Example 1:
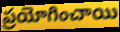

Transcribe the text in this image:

ప్రయోగించాయి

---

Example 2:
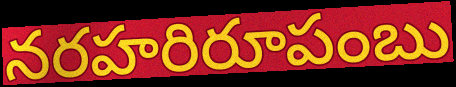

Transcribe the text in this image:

నరహరిరూపంబు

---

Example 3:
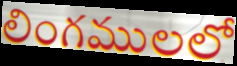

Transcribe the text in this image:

లింగములలో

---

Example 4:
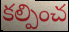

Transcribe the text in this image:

కల్పించ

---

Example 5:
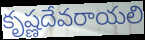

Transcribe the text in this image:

కృష్ణదేవరాయలి